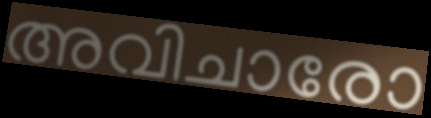
അവിചാരോ